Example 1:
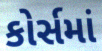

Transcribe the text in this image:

કોર્સમાં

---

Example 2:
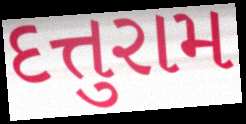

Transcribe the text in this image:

દત્તુરામ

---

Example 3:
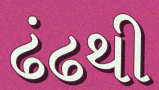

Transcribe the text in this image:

ઢંઢથી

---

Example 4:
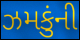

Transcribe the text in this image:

ઝમકુંની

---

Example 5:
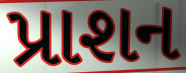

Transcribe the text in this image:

પ્રાશન